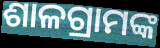
ଶାଳଗ୍ରାମଙ୍କ